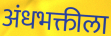
अंधभक्तीला